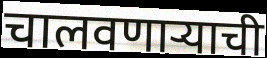
चालवणाऱ्याची